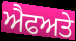
ਐਫਅਤੇ